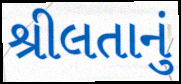
શ્રીલતાનું